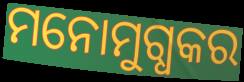
ମନୋମୁଗ୍ଧକର